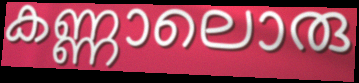
കണ്ണാലൊരു